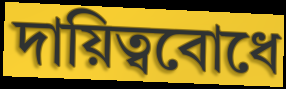
দায়িত্ববোধে